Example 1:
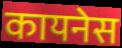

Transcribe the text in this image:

कायनेस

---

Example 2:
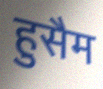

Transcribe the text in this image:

हुसैम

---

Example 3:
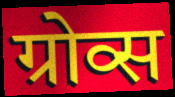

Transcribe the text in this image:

ग्रोव्स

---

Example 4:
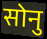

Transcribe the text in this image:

सोनु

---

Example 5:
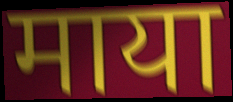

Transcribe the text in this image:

माया